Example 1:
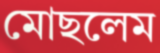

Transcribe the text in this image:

মোছলেম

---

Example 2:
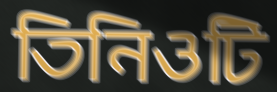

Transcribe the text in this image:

তিনিওটি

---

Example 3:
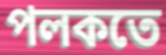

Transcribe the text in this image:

পলকতে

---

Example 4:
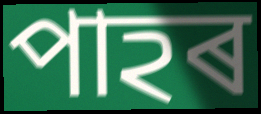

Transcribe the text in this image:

পাহৰ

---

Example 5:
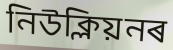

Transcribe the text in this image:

নিউক্লিয়নৰ